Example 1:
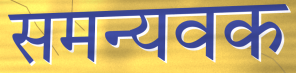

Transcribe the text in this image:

समन्यवक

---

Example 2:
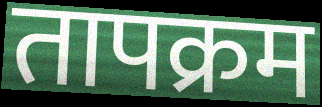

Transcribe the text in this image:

तापक्रम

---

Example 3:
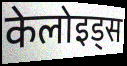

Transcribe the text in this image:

केलोइड्स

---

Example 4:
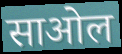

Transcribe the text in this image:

साओल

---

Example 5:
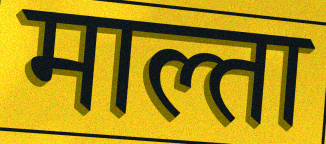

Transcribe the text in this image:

माल्ता